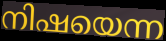
നിഷയെന്ന